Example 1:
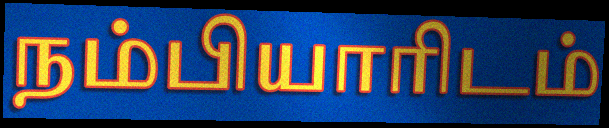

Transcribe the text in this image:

நம்பியாரிடம்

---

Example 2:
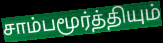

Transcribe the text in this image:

சாம்பமூர்த்தியும்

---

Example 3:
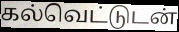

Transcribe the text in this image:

கல்வெட்டுடன்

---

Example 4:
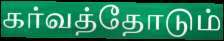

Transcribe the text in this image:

கர்வத்தோடும்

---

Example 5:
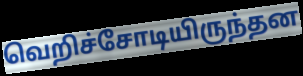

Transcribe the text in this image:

வெறிச்சோடியிருந்தன